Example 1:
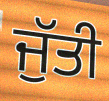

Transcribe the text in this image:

ਜੁੱਤੀ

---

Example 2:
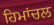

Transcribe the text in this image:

ਹਿਮਾਂਚਲ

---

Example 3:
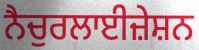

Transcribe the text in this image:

ਨੈਚੁਰਲਾਈਜ਼ੇਸ਼ਨ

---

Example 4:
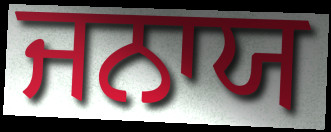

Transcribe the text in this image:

ਜਨਾਯ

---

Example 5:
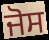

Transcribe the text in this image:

ਜੋਸ